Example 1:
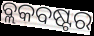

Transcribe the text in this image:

ବ୍ଲକବଷ୍ଟର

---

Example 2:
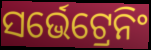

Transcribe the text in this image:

ସର୍ଭେଟ୍ରେନିଂ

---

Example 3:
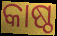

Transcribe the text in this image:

କାଷ୍ଠ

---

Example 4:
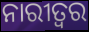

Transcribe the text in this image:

ନାରୀତ୍ଵର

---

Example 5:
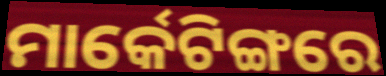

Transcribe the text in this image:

ମାର୍କେଟିଙ୍ଗରେ